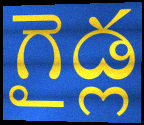
గైడ్ల